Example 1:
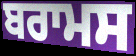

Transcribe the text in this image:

ਬਰਾਮਸ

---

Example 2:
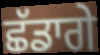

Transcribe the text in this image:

ਛੱਡਾਗੇ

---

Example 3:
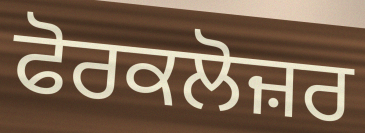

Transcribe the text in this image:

ਫੋਰਕਲੋਜ਼ਰ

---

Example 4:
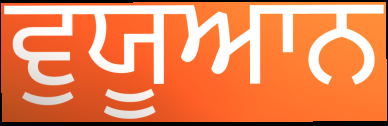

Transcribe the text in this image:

ਵੁਯੂਆਨ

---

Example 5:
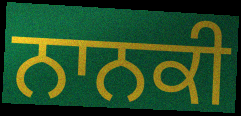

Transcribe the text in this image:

ਨਾਨਕੀ